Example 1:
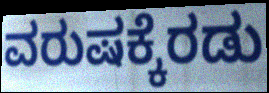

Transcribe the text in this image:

ವರುಷಕ್ಕೆರಡು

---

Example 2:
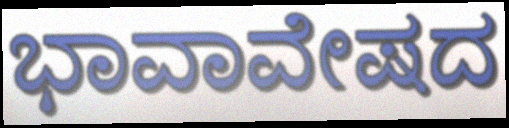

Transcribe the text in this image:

ಭಾವಾವೇಷದ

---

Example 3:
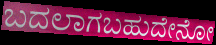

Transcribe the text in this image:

ಬದಲಾಗಬಹುದೇನೋ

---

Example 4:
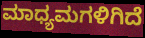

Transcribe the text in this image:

ಮಾಧ್ಯಮಗಳಿಗಿದೆ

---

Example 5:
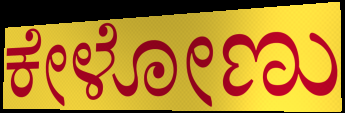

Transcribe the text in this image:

ಕೇಳೋಣು